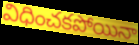
విధించకపోయినా